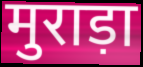
मुराड़ा